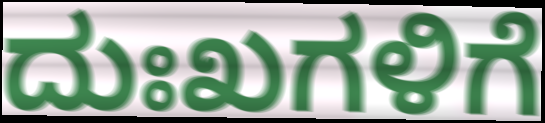
ದುಃಖಗಳಿಗೆ